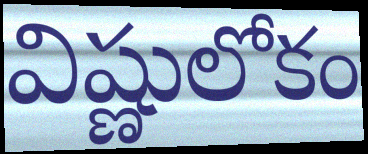
విష్ణులోకం